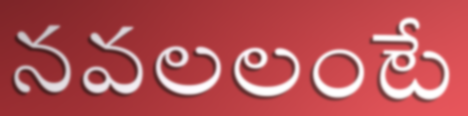
నవలలంటే